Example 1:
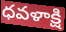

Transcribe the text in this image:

ధవళాక్షి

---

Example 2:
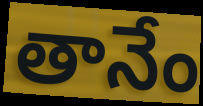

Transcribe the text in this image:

తానేం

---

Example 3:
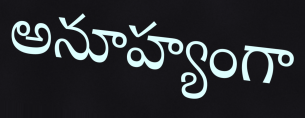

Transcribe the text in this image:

అనూహ్యంగా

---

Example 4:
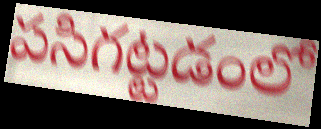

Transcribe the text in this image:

పసిగట్టడంలో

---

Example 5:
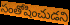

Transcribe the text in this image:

సంతోషించుడని